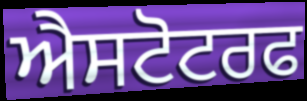
ਐਸਟੋਟਰਫ